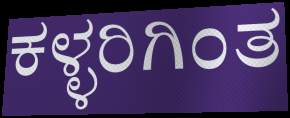
ಕಳ್ಳರಿಗಿಂತ